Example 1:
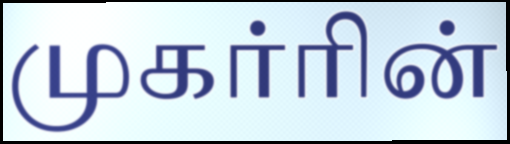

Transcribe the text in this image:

முகர்ரின்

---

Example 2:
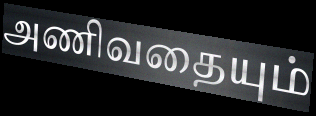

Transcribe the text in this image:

அணிவதையும்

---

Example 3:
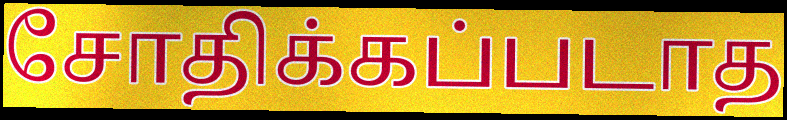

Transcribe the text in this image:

சோதிக்கப்படாத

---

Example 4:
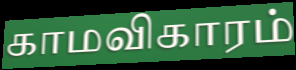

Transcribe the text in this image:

காமவிகாரம்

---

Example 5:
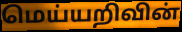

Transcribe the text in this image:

மெய்யறிவின்